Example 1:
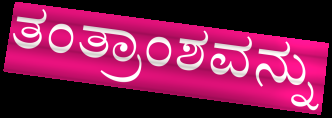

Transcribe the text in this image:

ತಂತ್ರಾಂಶವನ್ನು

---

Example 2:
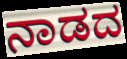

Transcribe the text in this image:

ನಾಡದ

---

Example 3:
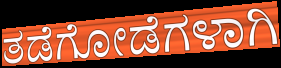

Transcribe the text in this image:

ತಡೆಗೋಡೆಗಳಾಗಿ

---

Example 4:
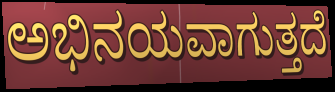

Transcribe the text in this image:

ಅಭಿನಯವಾಗುತ್ತದೆ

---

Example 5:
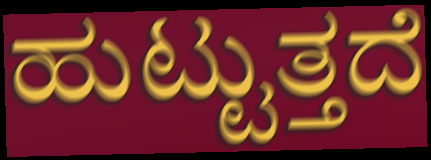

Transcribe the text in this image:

ಹುಟ್ಟುತ್ತದೆ